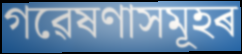
গৱেষণাসমূহৰ